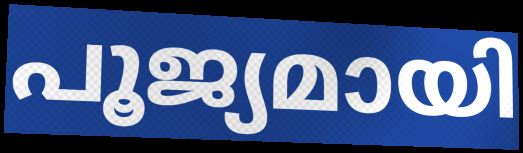
പൂജ്യമായി